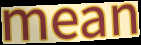
mean